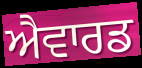
ਐਵਾਰਡ